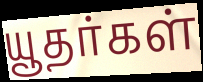
யூதர்கள்